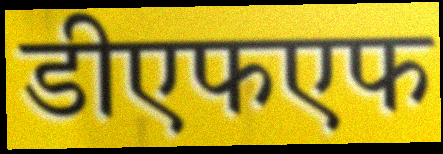
डीएफएफ